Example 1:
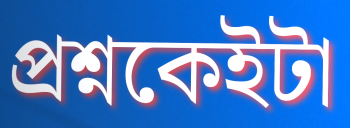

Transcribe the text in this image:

প্ৰশ্নকেইটা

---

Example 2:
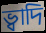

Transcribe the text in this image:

ভ্বাদি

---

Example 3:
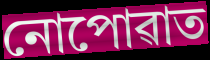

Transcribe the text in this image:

নোপোৱাত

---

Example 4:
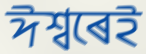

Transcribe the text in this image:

ঈশ্বৰেই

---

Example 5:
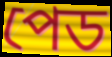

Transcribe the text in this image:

পেড